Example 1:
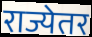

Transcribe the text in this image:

राज्येतर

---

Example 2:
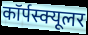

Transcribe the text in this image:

कॉर्पस्क्यूलर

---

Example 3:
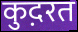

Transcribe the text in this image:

कुद़रत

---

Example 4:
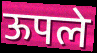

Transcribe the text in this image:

ऊपले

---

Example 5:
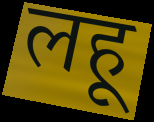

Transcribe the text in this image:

लहू